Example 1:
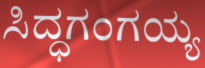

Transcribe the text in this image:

ಸಿದ್ಧಗಂಗಯ್ಯ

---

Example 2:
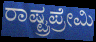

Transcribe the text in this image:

ರಾಷ್ಟ್ರಪ್ರೇಮಿ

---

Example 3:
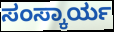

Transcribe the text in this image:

ಸಂಸ್ಕಾರ್ಯ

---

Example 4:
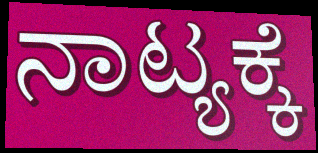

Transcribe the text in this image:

ನಾಟ್ಯಕ್ಕೆ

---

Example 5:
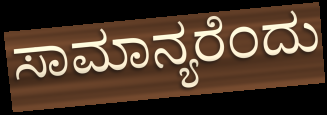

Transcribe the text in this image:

ಸಾಮಾನ್ಯರೆಂದು